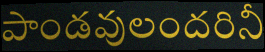
పాండవులందరినీ